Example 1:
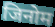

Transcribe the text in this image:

जिनोम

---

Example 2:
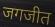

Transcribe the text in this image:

जगजीत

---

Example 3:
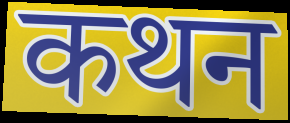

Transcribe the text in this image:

कथन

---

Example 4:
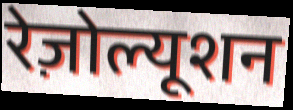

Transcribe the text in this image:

रेज़ोल्यूशन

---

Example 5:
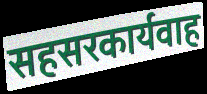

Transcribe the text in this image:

सहसरकार्यवाह